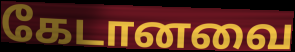
கேடானவை